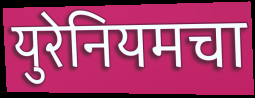
युरेनियमचा